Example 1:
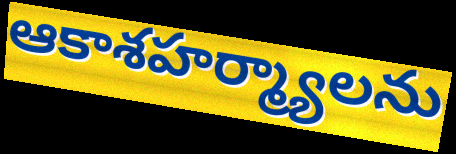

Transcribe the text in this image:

ఆకాశహర్మ్యాలను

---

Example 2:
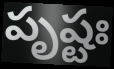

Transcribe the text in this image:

పృష్టః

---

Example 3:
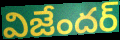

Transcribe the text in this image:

విజేందర్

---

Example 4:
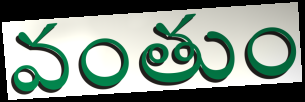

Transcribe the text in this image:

వంతుం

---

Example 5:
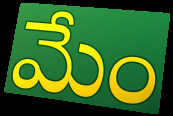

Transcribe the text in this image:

మేం